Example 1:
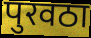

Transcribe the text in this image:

पुरवठा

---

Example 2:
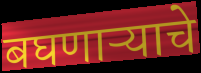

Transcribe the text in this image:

बघणाऱ्याचे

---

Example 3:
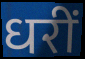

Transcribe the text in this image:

धरीं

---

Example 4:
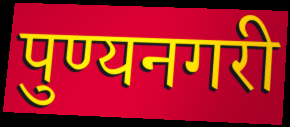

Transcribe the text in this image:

पुण्यनगरी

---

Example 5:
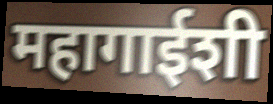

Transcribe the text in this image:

महागाईशी